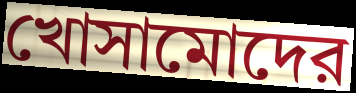
খোসামোদের